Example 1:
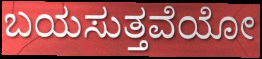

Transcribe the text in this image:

ಬಯಸುತ್ತವೆಯೋ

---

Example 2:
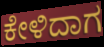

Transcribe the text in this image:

ಕೇಳಿದಾಗ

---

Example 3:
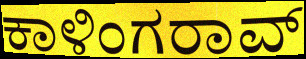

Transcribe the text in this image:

ಕಾಳಿಂಗರಾವ್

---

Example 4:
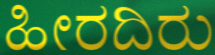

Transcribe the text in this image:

ಹೀರದಿರು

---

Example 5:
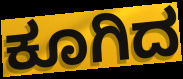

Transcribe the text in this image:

ಕೂಗಿದ